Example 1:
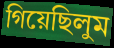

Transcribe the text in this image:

গিয়েছিলুম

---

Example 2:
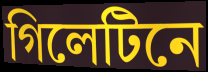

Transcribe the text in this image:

গিলেটিনে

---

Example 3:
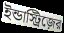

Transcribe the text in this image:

ইন্ডাস্ট্রিজ়ের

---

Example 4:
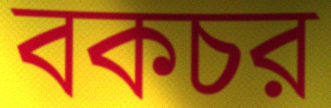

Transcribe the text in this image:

বকচর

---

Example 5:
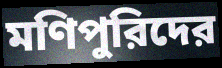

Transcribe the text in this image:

মণিপুরিদের